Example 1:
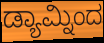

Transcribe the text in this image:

ಡ್ಯಾಮ್ನಿಂದ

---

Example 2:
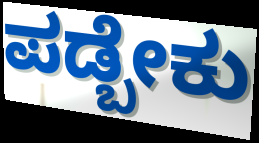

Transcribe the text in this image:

ಪಡ್ಬೇಕು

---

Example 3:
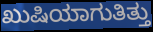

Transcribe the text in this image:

ಖುಷಿಯಾಗುತಿತ್ತು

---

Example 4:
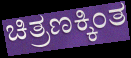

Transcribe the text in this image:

ಚಿತ್ರಣಕ್ಕಿಂತ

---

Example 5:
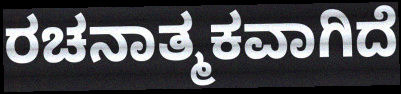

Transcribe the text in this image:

ರಚನಾತ್ಮಕವಾಗಿದೆ